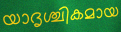
യാദൃശ്ചികമായ